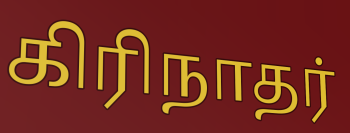
கிரிநாதர்